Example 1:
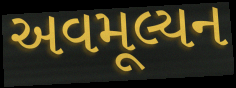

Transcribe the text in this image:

અવમૂલ્યન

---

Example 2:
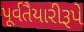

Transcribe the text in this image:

પૂર્વતૈયારીરૂપે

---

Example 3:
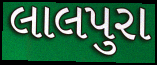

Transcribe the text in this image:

લાલપુરા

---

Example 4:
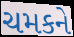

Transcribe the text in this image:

ચમકને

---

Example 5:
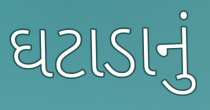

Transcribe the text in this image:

ઘટાડાનું